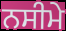
ਨਸੀਮੇ